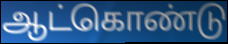
ஆட்கொண்டு